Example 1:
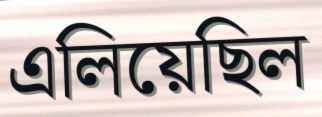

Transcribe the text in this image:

এলিয়েছিল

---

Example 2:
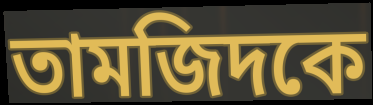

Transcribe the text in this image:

তামজিদকে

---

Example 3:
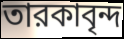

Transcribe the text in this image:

তারকাবৃন্দ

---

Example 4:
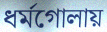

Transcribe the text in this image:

ধর্মগোলায়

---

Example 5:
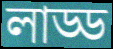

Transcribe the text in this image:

লাড্ড